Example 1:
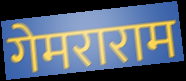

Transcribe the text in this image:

गेमराराम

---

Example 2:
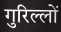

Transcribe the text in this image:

गुरिल्लों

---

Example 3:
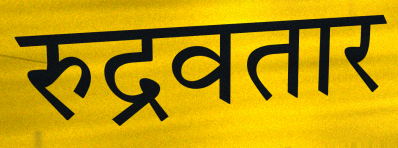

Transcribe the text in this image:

रुद्रवतार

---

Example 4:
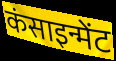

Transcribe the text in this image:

कंसाइन्मेंट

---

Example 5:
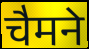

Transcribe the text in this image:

चैमने